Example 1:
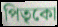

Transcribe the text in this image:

পিতৃকো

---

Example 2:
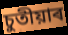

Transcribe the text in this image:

চুতীয়াৰ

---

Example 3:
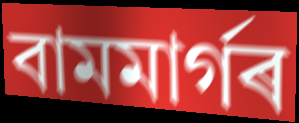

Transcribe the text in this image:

বামমাৰ্গৰ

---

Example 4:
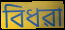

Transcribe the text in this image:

বিধৱা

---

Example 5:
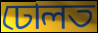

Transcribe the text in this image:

ঢোলত